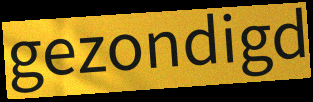
gezondigd